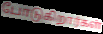
போடுகிறார்கள்